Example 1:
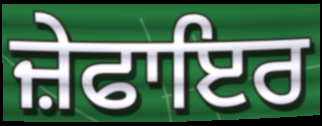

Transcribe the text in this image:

ਜ਼ੇਫਾਇਰ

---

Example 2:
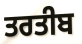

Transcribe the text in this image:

ਤਰਤੀਬ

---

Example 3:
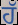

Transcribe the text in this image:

ਹੱ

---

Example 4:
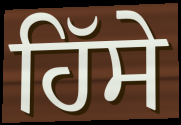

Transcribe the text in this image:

ਹਿੱਸੇ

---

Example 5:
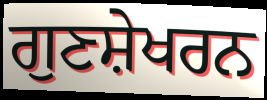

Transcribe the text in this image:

ਗੁਣਸ਼ੇਖਰਨ